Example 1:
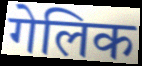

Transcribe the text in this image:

गेलिक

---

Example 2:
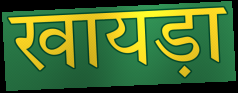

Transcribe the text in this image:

खायड़ा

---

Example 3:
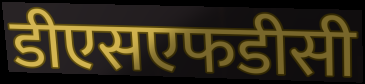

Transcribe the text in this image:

डीएसएफडीसी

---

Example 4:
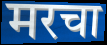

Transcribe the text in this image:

मरचा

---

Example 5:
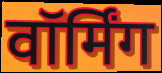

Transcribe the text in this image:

वॉर्मिंग